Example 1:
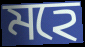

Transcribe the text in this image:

মহে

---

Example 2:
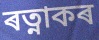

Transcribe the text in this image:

ৰত্নাকৰ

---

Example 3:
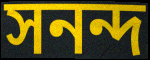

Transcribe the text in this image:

সনন্দ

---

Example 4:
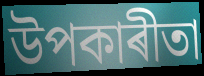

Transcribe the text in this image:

উপকাৰীতা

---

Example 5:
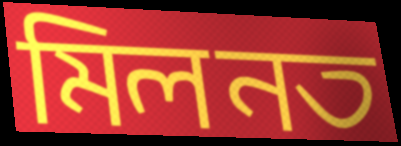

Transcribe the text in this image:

মিলনত